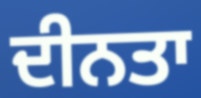
ਦੀਨਤਾ